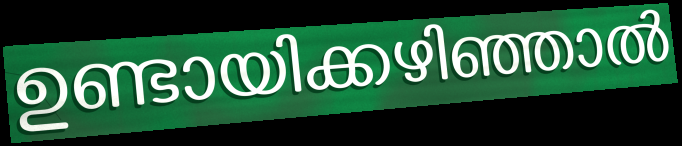
ഉണ്ടായിക്കഴിഞ്ഞാൽ